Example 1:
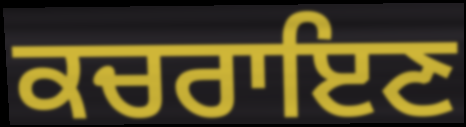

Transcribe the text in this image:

ਕਚਰਾਇਣ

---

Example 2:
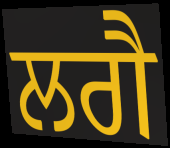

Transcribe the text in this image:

ਲਗੈ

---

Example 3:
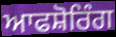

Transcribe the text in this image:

ਆਫਸ਼ੋਰਿੰਗ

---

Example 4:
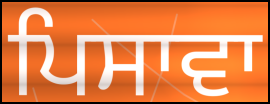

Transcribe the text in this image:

ਪਿਸਾਵਾ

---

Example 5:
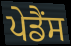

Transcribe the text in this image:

ਪੇਡੈਂਸ